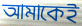
আমাকেই